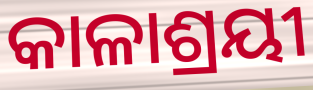
କାଳାଶ୍ରୟୀ